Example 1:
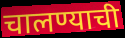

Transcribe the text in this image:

चालण्याची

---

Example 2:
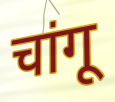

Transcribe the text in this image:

चांगू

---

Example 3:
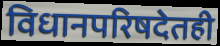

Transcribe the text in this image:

विधानपरिषदेतही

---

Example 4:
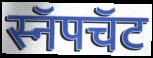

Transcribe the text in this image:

स्नॅपचॅट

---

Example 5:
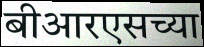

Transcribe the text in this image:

बीआरएसच्या